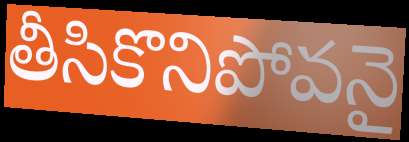
తీసికొనిపోవనై